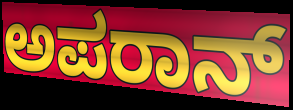
ಅಪರಾನ್